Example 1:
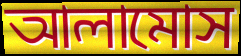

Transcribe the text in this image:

আলামোস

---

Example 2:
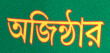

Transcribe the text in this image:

অজিন্ঠার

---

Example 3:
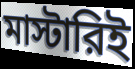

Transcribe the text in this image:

মাস্টারিই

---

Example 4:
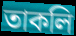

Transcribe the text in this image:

তাকলি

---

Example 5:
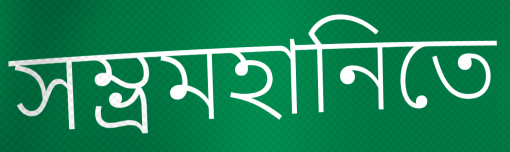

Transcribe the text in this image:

সম্ভ্রমহানিতে